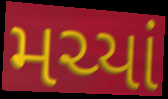
મચ્યાં